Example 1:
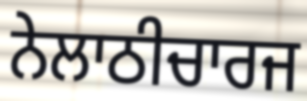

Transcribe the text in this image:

ਨੇਲਾਠੀਚਾਰਜ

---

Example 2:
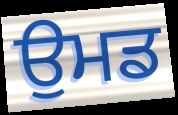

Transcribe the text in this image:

ਉਮਡ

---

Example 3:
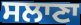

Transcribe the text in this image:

ਸਲਾਣਾ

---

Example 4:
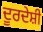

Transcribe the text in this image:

ਦੂਰਦੇਸ਼ੀ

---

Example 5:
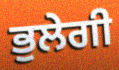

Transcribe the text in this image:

ਭੁਲੇਗੀ